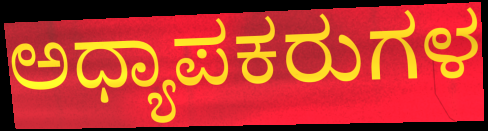
ಅಧ್ಯಾಪಕರುಗಳ